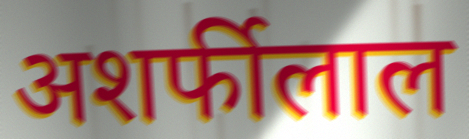
अशर्फीलाल